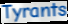
Tyrants